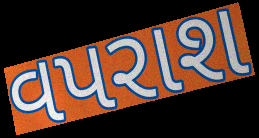
વપરાશ